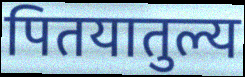
पितयातुल्य